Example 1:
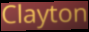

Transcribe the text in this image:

Clayton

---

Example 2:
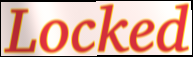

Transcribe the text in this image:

Locked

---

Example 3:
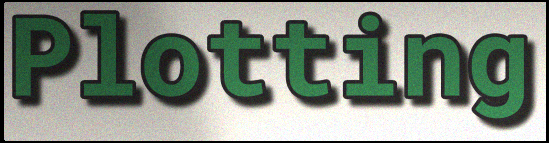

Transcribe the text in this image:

Plotting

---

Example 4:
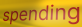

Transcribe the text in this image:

spending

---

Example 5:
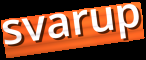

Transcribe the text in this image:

svarup